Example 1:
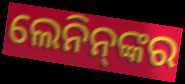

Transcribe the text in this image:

ଲେନିନ୍‌ଙ୍କର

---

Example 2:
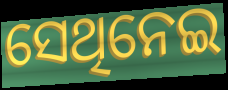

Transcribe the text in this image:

ସେଥିନେଇ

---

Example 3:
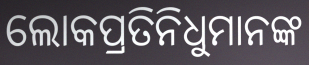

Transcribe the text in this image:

ଲୋକପ୍ରତିନିଧୁମାନଙ୍କ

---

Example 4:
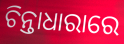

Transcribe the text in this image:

ଚିନ୍ତାଧାରାରେ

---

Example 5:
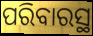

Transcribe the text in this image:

ପରିବାରସ୍ଥ